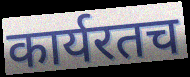
कार्यरतच